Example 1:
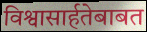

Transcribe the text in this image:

विश्वासार्हतेबाबत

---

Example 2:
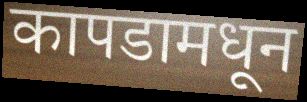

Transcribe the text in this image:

कापडामधून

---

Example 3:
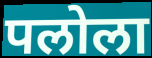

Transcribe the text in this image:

पलोला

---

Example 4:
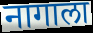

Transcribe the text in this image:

नागाला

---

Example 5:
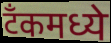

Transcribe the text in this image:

टॅंकमध्ये